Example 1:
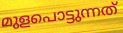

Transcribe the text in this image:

മുളപൊട്ടുന്നത്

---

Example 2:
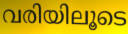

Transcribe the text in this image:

വരിയിലൂടെ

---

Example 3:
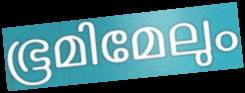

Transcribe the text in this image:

ഭൂമിമേലും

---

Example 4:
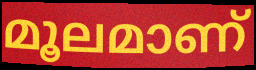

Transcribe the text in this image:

മൂലമാണ്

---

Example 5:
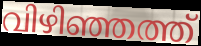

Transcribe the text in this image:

വിഴിഞ്ഞത്ത്